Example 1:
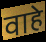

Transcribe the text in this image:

वाहे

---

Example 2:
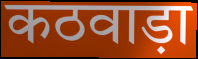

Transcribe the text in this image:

कठवाड़ा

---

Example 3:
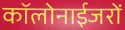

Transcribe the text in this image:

कॉलोनाईजरों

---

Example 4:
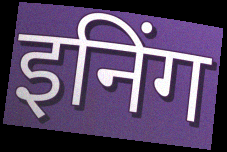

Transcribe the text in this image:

इनिंग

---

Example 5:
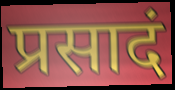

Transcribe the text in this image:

प्रसादं